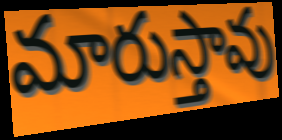
మారుస్తావు